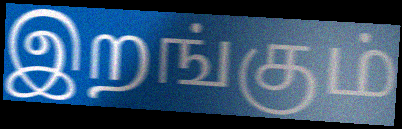
இறங்கும்